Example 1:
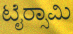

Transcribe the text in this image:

ಟೈರ‍್ಸಾಮಿ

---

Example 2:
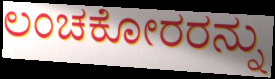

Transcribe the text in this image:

ಲಂಚಕೋರರನ್ನು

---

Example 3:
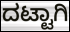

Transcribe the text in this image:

ದಟ್ಟಾಗಿ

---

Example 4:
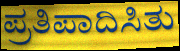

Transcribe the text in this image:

ಪ್ರತಿಪಾದಿಸಿತು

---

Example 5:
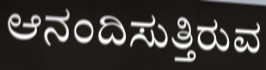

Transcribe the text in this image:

ಆನಂದಿಸುತ್ತಿರುವ